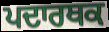
ਪਦਾਰਥਕ